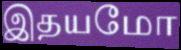
இதயமோ